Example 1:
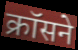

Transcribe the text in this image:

क्रॉसने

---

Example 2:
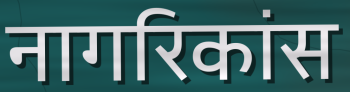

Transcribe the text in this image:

नागरिकांस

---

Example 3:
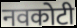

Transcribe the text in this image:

नवकोटी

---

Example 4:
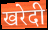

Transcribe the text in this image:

खरेदी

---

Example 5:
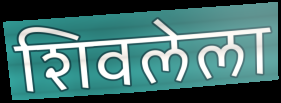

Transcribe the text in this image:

शिवलेला